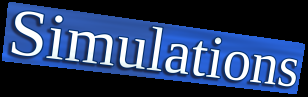
Simulations